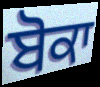
ਬੋਕਾ